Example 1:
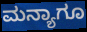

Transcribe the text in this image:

ಮನ್ಯಾಗೂ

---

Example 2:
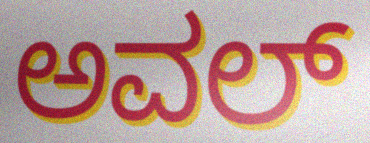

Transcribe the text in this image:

ಅವಲ್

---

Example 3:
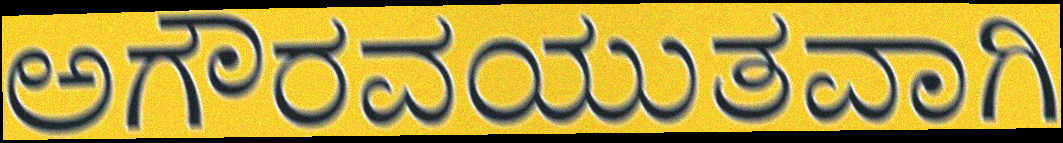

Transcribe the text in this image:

ಅಗೌರವಯುತವಾಗಿ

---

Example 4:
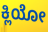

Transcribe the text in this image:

ಕ್ಲಿಯೋ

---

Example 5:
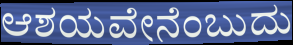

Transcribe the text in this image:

ಆಶಯವೇನೆಂಬುದು